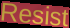
Resist